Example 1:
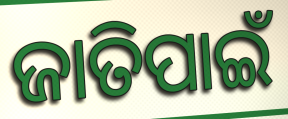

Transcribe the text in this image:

ଜାତିପାଇଁ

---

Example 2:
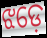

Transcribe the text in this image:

ଝଡ଼େ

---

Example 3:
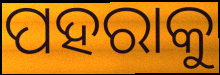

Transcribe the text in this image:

ପହରାକୁ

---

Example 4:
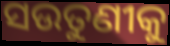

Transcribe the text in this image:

ସଉତୁଣୀକୁ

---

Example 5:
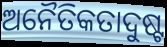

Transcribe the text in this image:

ଅନୈତିକତାଦୁଷ୍ଟ